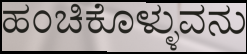
ಹಂಚಿಕೊಳ್ಳುವನು